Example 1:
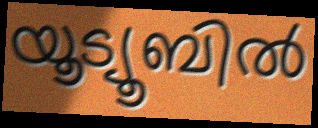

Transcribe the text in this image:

യൂട്യൂബിൽ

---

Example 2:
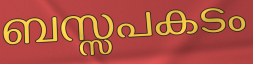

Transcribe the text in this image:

ബസ്സപകടം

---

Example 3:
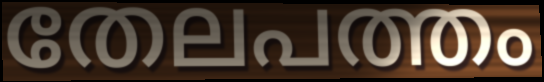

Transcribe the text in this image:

തേലപത്തം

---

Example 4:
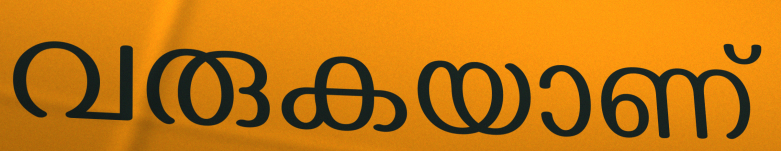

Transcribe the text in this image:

വരുകയാണ്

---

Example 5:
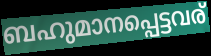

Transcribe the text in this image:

ബഹുമാനപ്പെട്ടവര്